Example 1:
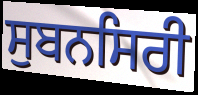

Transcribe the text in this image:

ਸੁਬਨਸਿਰੀ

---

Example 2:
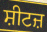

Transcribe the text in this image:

ਸ਼ੀਟਜ਼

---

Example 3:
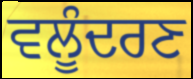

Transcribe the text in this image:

ਵਲੂੰਦਰਣ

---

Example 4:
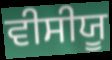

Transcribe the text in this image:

ਵੀਸੀਯੂ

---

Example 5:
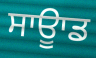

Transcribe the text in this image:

ਸਾਊਾਡ